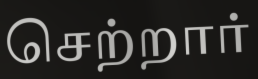
செற்றார்